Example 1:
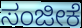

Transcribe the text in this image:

ಸಂಜೀಕೆ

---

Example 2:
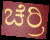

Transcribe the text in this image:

ಚೆರ‍್ರಿ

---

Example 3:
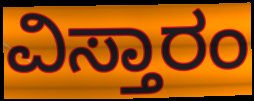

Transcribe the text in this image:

ವಿಸ್ತಾರಂ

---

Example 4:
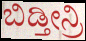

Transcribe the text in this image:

ಬಿಡ್ತೀನ್ರಿ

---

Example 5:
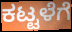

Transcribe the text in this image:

ಕಟ್ಟಳೆಗೆ